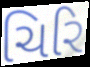
ચિરિ